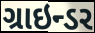
ગ્રાઇન્ડર